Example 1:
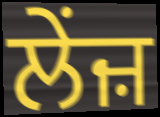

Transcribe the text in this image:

ਲੇਂਜ਼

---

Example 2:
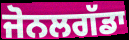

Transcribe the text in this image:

ਜੋਨਲਗੱਡਾ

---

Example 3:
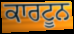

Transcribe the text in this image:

ਕਾਰਟੂਨ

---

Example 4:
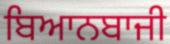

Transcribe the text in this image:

ਬਿਆਨਬਾਜੀ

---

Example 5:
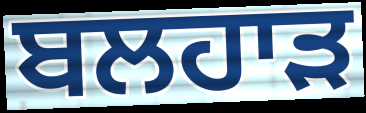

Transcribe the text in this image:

ਬਲਹਾੜ